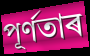
পূৰ্ণতাৰ